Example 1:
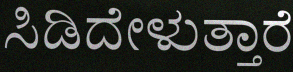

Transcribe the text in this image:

ಸಿಡಿದೇಳುತ್ತಾರೆ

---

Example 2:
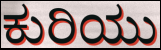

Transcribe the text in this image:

ಕುರಿಯು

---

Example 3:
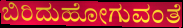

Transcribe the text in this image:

ಬಿರಿದುಹೋಗುವಂತೆ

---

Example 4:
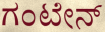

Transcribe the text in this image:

ಗಂಟೇನ್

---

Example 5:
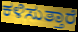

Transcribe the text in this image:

ಕಳಿಸುತ್ತಾರೆ